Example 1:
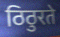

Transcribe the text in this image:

ठिठुरते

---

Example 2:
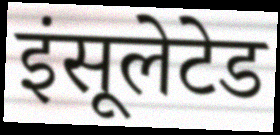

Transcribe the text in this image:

इंसूलेटेड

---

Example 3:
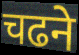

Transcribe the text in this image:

चढने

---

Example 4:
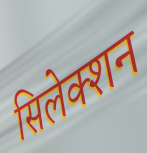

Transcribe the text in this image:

सिलेक्शन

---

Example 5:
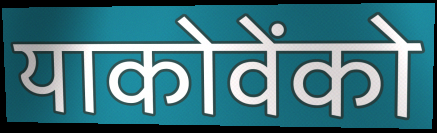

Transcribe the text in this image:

याकोवेंको